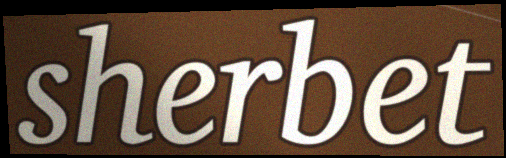
sherbet